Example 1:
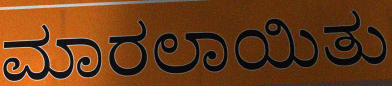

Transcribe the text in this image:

ಮಾರಲಾಯಿತು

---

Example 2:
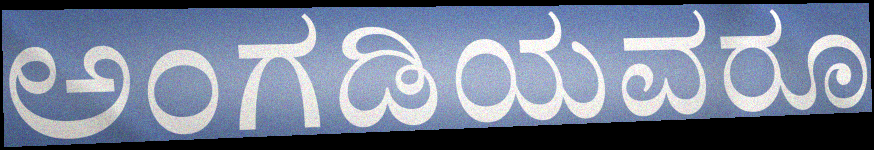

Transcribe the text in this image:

ಅಂಗಡಿಯವರೂ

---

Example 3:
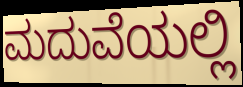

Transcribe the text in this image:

ಮದುವೆಯಲ್ಲಿ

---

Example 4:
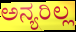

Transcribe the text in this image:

ಅನ್ಯರಿಲ್ಲ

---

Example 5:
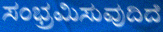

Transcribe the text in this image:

ಸಂಭ್ರಮಿಸುವುದಿದೆ